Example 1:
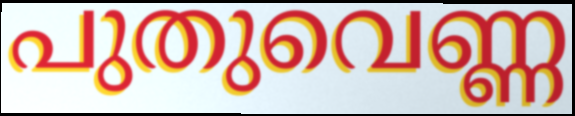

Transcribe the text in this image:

പുതുവെണ്ണ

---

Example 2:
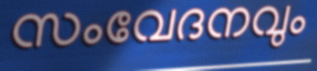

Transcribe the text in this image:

സംവേദനവും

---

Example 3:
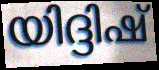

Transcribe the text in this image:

യിദ്ദിഷ്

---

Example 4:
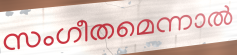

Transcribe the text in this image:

സംഗീതമെന്നാൽ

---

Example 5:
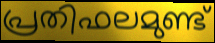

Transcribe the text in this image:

പ്രതിഫലമുണ്ട്